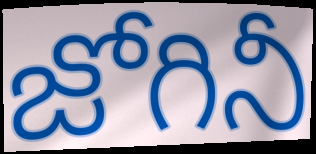
జోగినీ